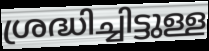
ശ്രദ്ധിച്ചിട്ടുള്ള